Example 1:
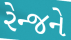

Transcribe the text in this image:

રેન્જને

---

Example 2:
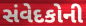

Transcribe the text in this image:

સંવેદકોની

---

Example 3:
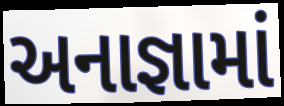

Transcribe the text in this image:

અનાજ્ઞામાં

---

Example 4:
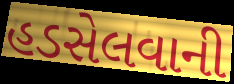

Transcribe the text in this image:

હડસેલવાની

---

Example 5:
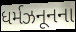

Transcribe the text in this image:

ધર્મઝનૂનના